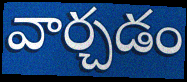
వార్చడం